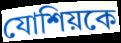
যোশিয়কে